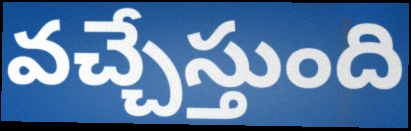
వచ్చేస్తుంది